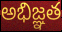
అభిజ్ఞత